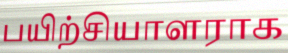
பயிற்சியாளராக